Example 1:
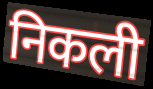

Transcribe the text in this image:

निकली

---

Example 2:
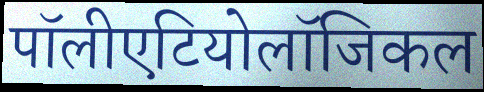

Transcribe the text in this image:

पॉलीएटियोलॉजिकल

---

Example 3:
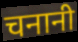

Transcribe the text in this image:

चनानी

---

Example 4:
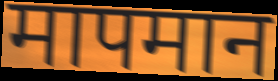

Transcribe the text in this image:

मापमान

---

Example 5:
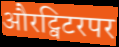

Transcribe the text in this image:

औरट्विटरपर